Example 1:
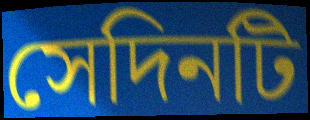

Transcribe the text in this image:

সেদিনটি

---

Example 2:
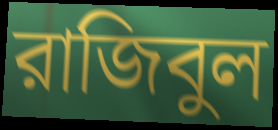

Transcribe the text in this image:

রাজিবুল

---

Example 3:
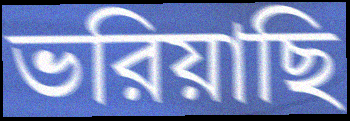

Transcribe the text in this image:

ভরিয়াছি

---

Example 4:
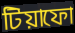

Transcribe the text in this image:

টিয়াফো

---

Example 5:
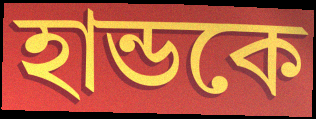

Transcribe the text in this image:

হান্ডকে